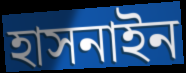
হাসনাইন